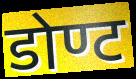
डोण्ट